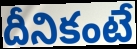
దీనికంటే